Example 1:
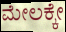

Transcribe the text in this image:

ಮೇಲಕ್ಕೇ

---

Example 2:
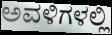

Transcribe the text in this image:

ಅವಳಿಗಳಲ್ಲಿ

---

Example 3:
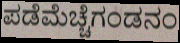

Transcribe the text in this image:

ಪಡೆಮೆಚ್ಚೆಗಂಡನಂ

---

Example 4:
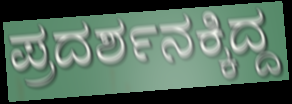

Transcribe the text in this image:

ಪ್ರದರ್ಶನಕ್ಕಿದ್ದ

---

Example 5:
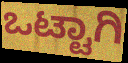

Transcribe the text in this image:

ಒಟ್ಟಾಗಿ